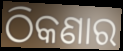
ଠିକଣାର